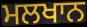
ਮਲਖਾਨ